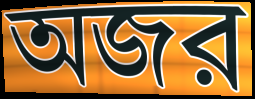
অজর